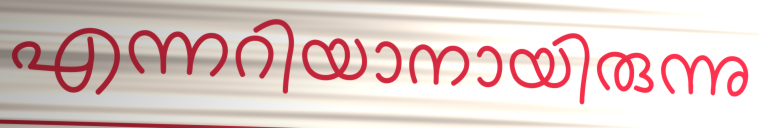
എന്നറിയാനായിരുന്നു